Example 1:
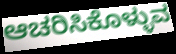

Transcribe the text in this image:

ಆಚರಿಸಿಕೊಳ್ಳುವ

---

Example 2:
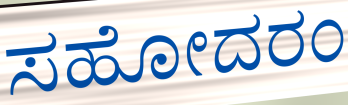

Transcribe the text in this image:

ಸಹೋದರಂ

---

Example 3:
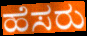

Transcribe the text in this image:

ಹೆಸರು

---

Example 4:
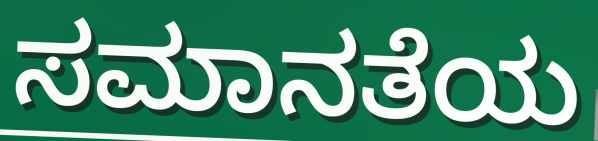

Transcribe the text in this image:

ಸಮಾನತೆಯ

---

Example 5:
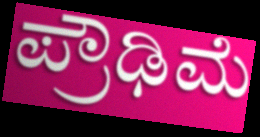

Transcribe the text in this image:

ಪ್ರೌಢಿಮೆ